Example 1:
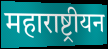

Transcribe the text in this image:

महाराष्ट्रीयन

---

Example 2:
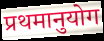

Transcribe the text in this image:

प्रथमानुयोग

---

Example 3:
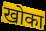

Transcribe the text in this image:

खोका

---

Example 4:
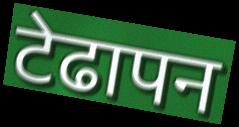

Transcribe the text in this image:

टेढापन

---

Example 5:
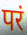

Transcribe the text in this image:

परं